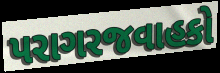
પરાગરજવાહકો